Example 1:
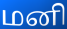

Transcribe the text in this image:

மனி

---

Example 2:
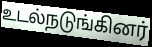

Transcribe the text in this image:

உடல்நடுங்கினர்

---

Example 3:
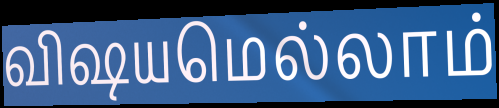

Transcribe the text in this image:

விஷயமெல்லாம்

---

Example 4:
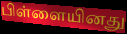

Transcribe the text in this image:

பிள்ளையினது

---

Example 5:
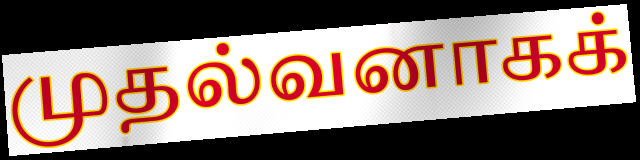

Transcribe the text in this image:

முதல்வனாகக்